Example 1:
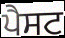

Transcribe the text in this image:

ਪੈਸਟ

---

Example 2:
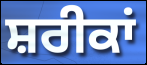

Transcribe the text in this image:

ਸ਼ਰੀਕਾਂ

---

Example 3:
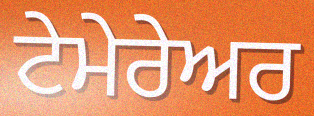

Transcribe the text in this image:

ਟੇਮੇਰੇਅਰ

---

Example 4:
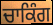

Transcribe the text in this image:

ਚਾਕਿੰਗ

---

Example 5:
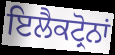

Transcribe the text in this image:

ਇਲੈਕਟ੍ਰੋਨਾਂ